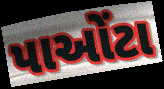
પાઓંટા